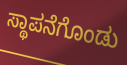
ಸ್ಥಾಪನೆಗೊಂಡು